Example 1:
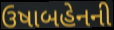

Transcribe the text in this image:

ઉષાબહેનની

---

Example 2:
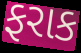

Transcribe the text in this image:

ફરાક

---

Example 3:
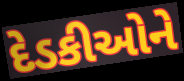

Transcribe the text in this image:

દેડકીઓને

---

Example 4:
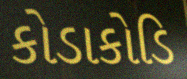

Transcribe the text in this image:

કોડાકોડિ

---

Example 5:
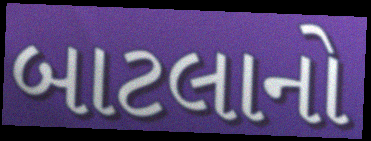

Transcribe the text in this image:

બાટલાનો